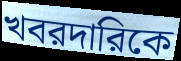
খবরদারিকে